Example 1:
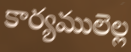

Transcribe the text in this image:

కార్యములెల్ల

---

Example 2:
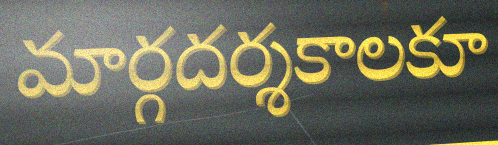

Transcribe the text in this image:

మార్గదర్శకాలకూ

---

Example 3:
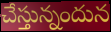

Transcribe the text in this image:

చేస్తున్నందున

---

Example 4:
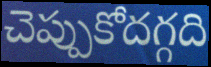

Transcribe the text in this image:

చెప్పుకోదగ్గది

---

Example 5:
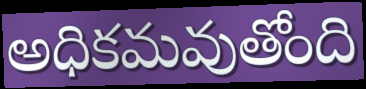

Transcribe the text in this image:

అధికమవుతోంది